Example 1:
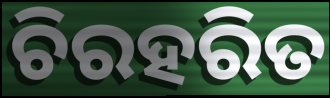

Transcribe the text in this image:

ଚିରହରିତ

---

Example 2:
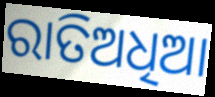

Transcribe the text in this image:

ରାତିଅଧିଆ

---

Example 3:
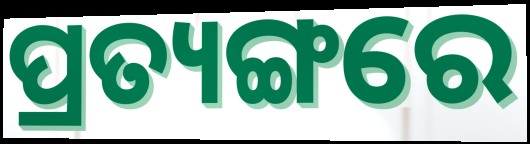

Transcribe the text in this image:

ପ୍ରତ୍ୟଙ୍ଗରେ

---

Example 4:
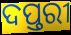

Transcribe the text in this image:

ଦପ୍ତରୀ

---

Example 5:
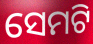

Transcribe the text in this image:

ସେମଟି